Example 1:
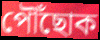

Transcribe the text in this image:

পৌঁছোক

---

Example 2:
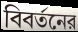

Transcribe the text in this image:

বিবর্তনের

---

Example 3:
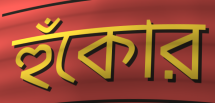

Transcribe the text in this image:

হুঁকোর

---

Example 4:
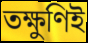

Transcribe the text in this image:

তক্ষুণিই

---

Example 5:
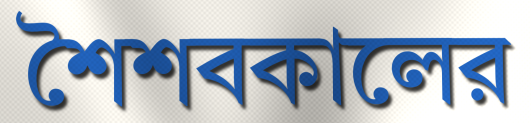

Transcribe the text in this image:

শৈশবকালের